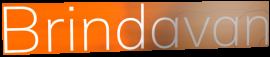
Brindavan